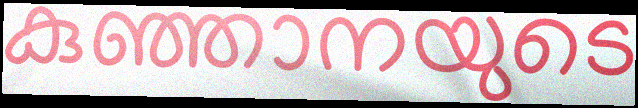
കുഞ്ഞാനയുടെ